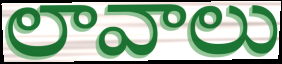
లావాలు